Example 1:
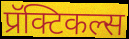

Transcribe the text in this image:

प्रॅक्टिकल्स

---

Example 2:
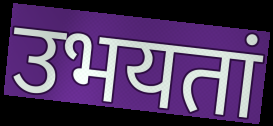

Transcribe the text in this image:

उभयतां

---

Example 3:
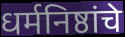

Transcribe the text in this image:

धर्मनिष्ठांचे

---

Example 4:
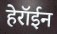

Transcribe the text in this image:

हेरॉईन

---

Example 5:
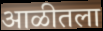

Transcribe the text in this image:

आळीतला